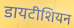
डायटीशियन